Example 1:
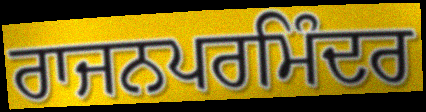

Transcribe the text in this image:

ਰਾਜਨਪਰਮਿੰਦਰ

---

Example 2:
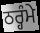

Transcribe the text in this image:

ਠਰ੍ਹੰਮੇ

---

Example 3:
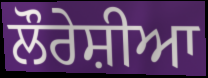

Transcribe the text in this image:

ਲੌਰੇਸ਼ੀਆ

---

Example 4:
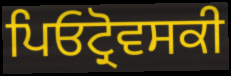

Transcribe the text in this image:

ਪਿਓਟ੍ਰੋਵਸਕੀ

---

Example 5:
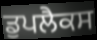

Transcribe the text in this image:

ਡੁਪਲੈਕਸ